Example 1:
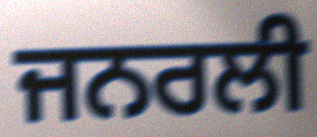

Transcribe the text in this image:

ਜਨਰਲੀ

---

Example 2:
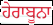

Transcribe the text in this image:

ਹੇਰਾਬੂਨਾ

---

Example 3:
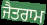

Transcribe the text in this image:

ਜੈਤਰਾਮ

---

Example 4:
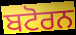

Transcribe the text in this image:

ਬਟੋਰਨ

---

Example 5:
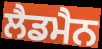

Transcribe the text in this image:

ਲੈਡਮੈਨ